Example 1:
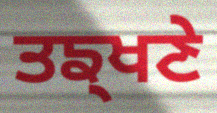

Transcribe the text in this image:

ਤਙ੍ਖਣੇ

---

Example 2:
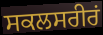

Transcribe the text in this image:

ਸਕਲਸਰੀਰਂ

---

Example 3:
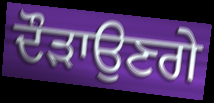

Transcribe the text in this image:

ਦੌੜਾਉਣਗੇ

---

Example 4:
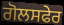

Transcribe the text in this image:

ਗੋਲਸਫੇਰ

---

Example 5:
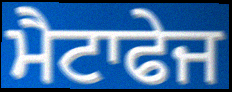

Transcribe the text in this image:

ਮੈਟਾਫੇਜ